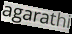
agarathi